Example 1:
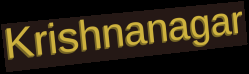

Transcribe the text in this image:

Krishnanagar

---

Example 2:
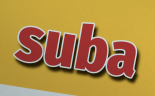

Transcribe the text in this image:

suba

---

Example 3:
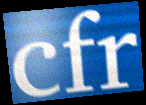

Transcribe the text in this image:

cfr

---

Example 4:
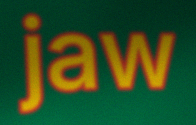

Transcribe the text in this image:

jaw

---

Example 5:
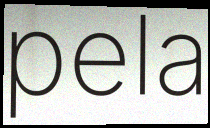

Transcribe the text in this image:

pela